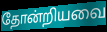
தோன்றியவை